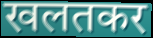
खलतकर